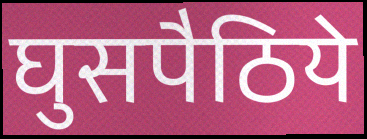
घुसपैठिये